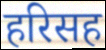
हरिसह